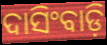
ଦାସିଂବାଡ଼ି